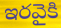
ఇరవైకి